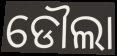
ଡୌଲା